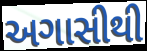
અગાસીથી